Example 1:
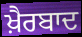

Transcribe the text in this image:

ਖ਼ੈਰਬਾਦ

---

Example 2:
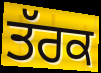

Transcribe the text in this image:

ਤੱਰਕ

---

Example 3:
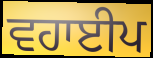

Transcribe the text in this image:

ਵਹਾਈਪ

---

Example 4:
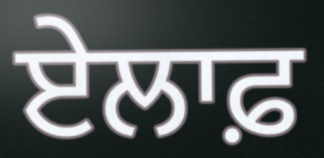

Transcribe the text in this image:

ਏਲਾਫ਼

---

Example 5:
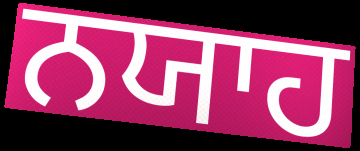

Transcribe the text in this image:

ਨਯਾਹ